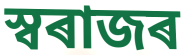
স্বৰাজৰ